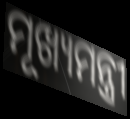
ମୂଖ୍ୟମନ୍ତ୍ରୀ